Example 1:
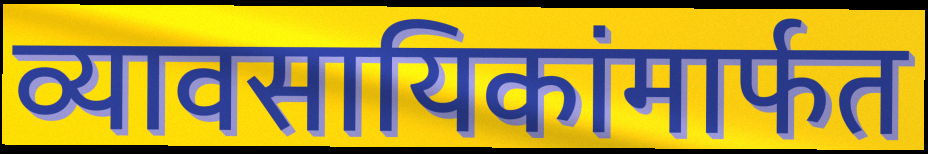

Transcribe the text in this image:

व्यावसायिकांमार्फत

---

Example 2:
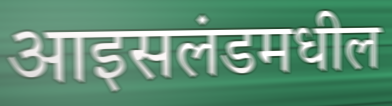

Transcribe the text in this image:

आइसलंडमधील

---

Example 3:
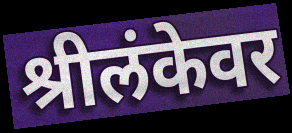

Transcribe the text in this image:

श्रीलंकेवर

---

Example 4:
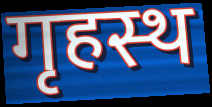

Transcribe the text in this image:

गृहस्थ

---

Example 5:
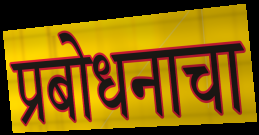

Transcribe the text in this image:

प्रबोधनाचा